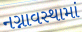
નગ્નાવસ્થામાં